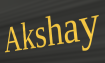
Akshay